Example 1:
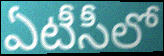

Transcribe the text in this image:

ఏటీసీలో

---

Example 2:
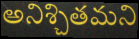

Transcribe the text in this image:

అనిశ్చితమని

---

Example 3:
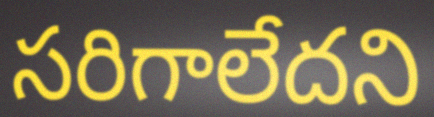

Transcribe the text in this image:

సరిగాలేదని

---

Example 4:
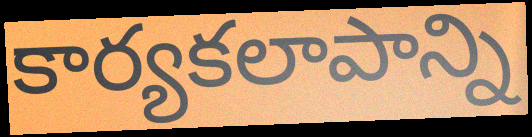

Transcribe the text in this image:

కార్యకలాపాన్ని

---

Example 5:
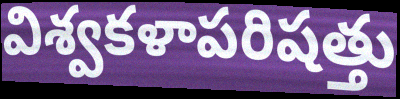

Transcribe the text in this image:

విశ్వకళాపరిషత్తు